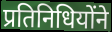
प्रतिनिधियोंने